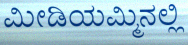
ಮೀಡಿಯಮ್ಮಿನಲ್ಲಿ